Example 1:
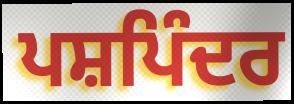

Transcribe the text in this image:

ਪਸ਼ਪਿੰਦਰ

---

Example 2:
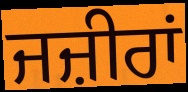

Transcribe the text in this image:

ਜਜ਼ੀਰਾਂ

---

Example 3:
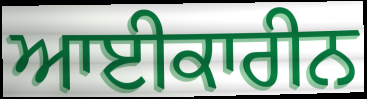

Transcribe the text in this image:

ਆਈਕਾਰੀਨ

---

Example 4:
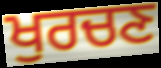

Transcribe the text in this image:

ਖੁਰਚਣ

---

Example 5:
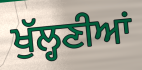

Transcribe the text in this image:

ਖੁੱਲ੍ਹਣੀਆਂ